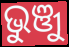
ଭୁଞ୍ଜୁ